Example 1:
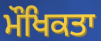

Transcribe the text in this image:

ਮੌਖਿਕਤਾ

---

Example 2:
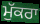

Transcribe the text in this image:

ਮੁੱਕਰਾ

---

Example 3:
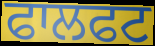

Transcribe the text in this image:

ਫਾਲਫਟ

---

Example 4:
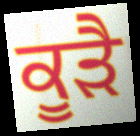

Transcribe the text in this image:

ਕੂੜੈ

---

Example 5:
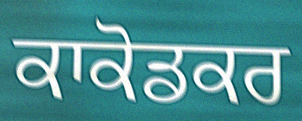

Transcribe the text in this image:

ਕਾਕੋਡਕਰ